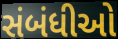
સંબંધીઓ